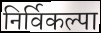
निर्विकल्पा